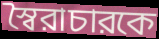
স্বৈরাচারকে